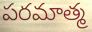
పరమాత్మ